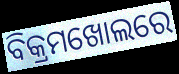
ବିକ୍ରମଖୋଲରେ